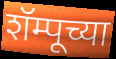
शॅम्पूच्या